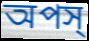
অপস্